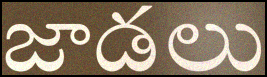
జాడలు